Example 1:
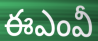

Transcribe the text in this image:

ఈఎంవీ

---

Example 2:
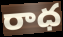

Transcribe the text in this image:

రాధ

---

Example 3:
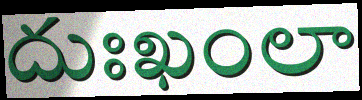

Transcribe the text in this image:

దుఃఖంలా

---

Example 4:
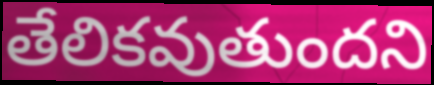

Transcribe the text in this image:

తేలికవుతుందని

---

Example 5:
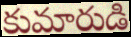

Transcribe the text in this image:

కుమారుడి